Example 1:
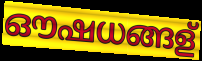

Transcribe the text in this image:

ഔഷധങ്ങള്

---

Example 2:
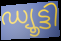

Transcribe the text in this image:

ഡ്യൂട്ടി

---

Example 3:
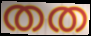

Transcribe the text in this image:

തത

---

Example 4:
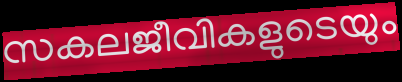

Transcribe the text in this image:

സകലജീവികളുടെയും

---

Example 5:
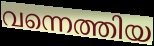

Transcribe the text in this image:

വന്നെത്തിയ